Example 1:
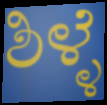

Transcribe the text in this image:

ಶಿಳ್ಳೆ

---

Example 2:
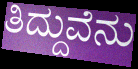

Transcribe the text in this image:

ತಿದ್ದುವೆನು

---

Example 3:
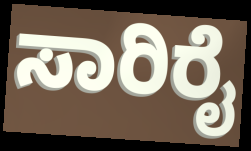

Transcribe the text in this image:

ಸಾರಿರೈ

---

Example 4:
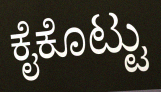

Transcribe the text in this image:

ಕೈಕೊಟ್ಟು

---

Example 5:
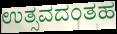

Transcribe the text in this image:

ಉತ್ಸವದಂತಹ